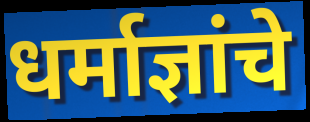
धर्माज्ञांचे